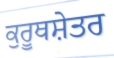
ਕੁਰੂਥਸ਼ੇਤਰ